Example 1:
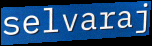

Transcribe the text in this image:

selvaraj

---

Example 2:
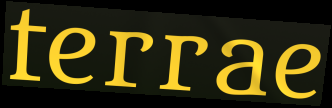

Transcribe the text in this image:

terrae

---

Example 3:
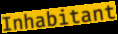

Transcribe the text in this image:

Inhabitant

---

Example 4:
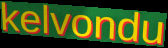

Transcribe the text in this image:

kelvondu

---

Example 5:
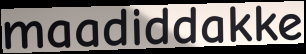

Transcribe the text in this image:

maadiddakke